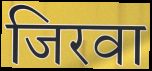
जिरवा